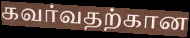
கவர்வதற்கான